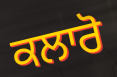
ਕਲਾਰੋ